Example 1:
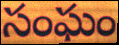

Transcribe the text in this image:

సంఘం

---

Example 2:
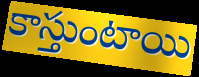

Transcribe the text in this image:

కాస్తుంటాయి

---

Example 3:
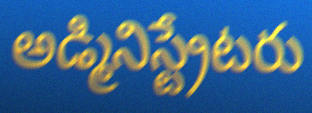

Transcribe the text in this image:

అడ్మినిస్ట్రేటరు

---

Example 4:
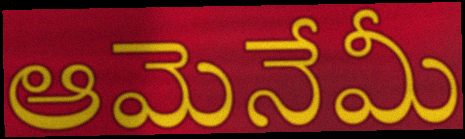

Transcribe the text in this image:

ఆమెనేమీ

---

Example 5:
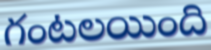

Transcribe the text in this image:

గంటలయింది